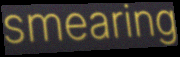
smearing